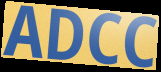
ADCC